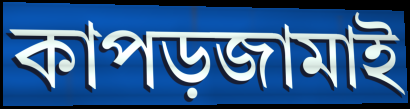
কাপড়জামাই